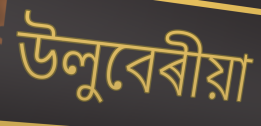
উলুবেৰীয়া